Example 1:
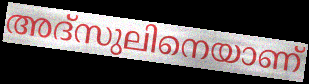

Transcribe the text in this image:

അദ്സുലിനെയാണ്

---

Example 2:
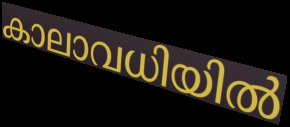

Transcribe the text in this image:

കാലാവധിയിൽ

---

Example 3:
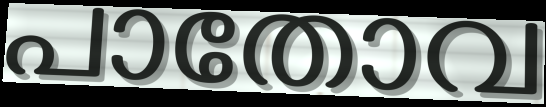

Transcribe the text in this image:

പാതോവ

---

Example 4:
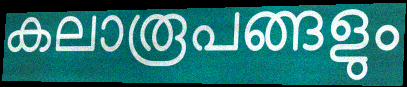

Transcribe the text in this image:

കലാരൂപങ്ങളും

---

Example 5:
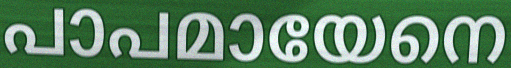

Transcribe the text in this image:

പാപമായേനെ